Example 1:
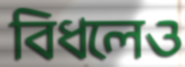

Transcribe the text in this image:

বিধলেও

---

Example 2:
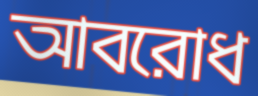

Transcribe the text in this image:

আবরোধ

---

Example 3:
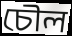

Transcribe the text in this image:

চৌল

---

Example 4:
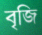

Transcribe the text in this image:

বৃজি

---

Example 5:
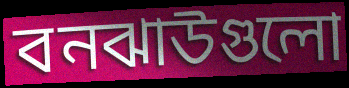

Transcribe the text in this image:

বনঝাউগুলো